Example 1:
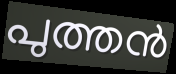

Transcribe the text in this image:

പുത്തൻ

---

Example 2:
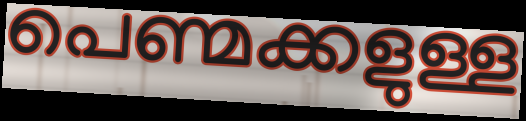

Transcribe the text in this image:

പെണ്മക്കളുള്ള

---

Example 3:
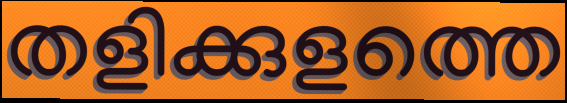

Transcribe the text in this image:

തളിക്കുളത്തെ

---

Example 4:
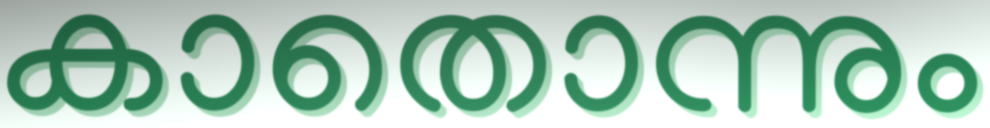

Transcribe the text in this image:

കാതൊന്നും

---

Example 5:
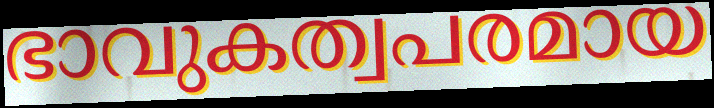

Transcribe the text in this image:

ഭാവുകത്വപരമായ